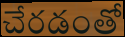
చేరడంతో